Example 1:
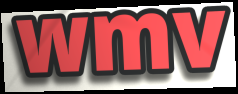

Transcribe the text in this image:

wmv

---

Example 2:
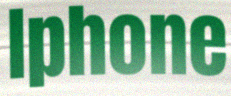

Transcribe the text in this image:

Iphone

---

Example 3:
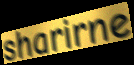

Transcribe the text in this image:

sharirne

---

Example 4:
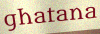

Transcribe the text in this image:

ghatana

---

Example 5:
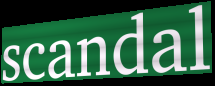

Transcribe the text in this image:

scandal